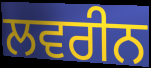
ਲਵਰੀਨ